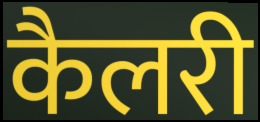
कैलरी